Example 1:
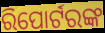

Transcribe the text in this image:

ରିପୋର୍ଟରଙ୍କ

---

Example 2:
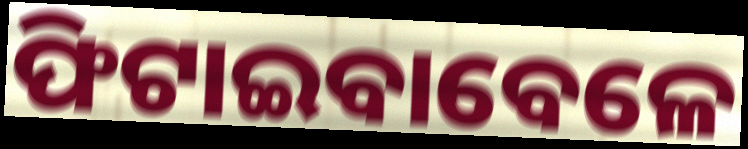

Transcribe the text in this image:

ଫିଟାଇବାବେଳେ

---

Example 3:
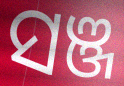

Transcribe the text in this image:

ସଞ୍ଜ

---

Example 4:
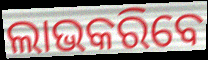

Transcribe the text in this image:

ଲାଭକରିବେ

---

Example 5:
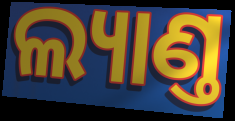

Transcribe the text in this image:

ଲ୍ୟାଣ୍ତ